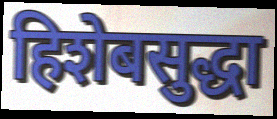
हिशेबसुद्धा